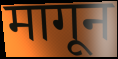
मागून